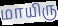
மாயிரு